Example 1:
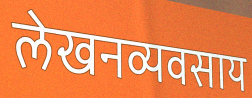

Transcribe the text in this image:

लेखनव्यवसाय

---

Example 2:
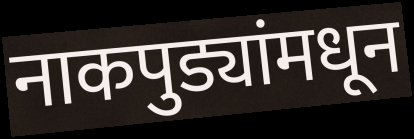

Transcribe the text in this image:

नाकपुड्यांमधून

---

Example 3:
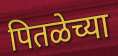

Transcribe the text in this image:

पितळेच्या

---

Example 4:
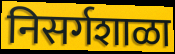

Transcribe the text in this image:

निसर्गशाळा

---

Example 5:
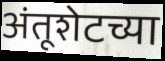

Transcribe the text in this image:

अंतूशेटच्या